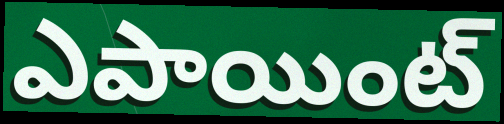
ఎపాయింట్